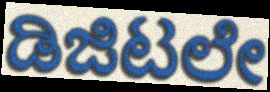
ಡಿಜಿಟಲೇ